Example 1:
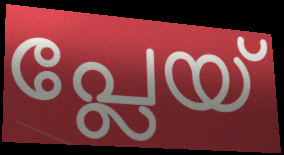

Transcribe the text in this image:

പ്ലേയ്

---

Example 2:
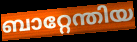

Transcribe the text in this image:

ബാറ്റേന്തിയ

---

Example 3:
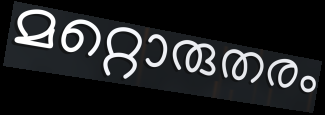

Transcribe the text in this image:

മറ്റൊരുതരം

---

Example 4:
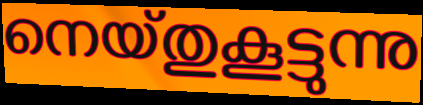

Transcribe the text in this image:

നെയ്തുകൂട്ടുന്നു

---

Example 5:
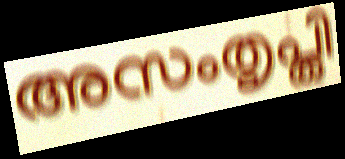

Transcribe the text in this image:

അസംതൃപ്തി